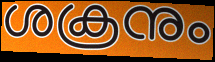
ശക്രനും